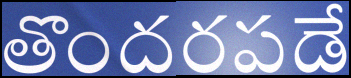
తొందరపడే